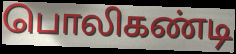
பொலிகண்டி